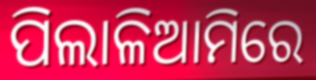
ପିଲାଳିଆମିରେ